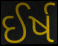
ઈર્ષ